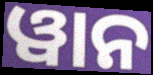
ୱାନ